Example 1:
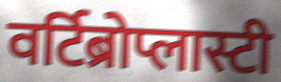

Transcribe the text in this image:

वर्टिब्रोप्लास्टी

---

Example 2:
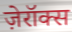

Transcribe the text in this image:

ज़ेरॉक्स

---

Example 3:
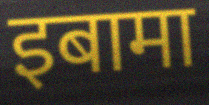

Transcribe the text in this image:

इबामा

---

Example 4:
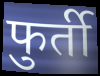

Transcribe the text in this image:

फुर्ती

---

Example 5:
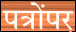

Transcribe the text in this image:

पत्रोंपर